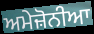
ਅਮੇਜ਼ੋਨੀਆ